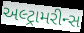
અલ્ટ્રામરીન્સ